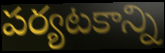
పర్యటకాన్ని